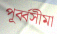
পূর্ব্বসীমা